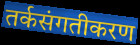
तर्कसंगतीकरण